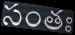
సంతః